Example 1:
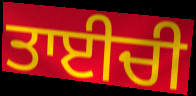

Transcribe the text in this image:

ਤਾਈਚੀ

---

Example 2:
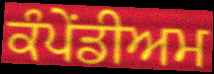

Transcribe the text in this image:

ਕੰਪੇਂਡੀਅਮ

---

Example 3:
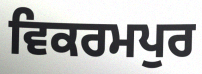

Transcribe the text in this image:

ਵਿਕਰਮਪੁਰ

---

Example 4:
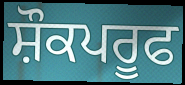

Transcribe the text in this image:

ਸ਼ੌਕਪਰੂਫ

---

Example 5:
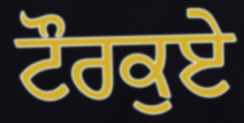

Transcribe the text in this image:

ਟੌਰਕੁਏ